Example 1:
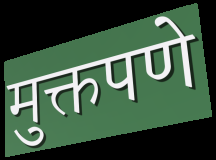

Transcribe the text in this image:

मुक्तपणे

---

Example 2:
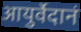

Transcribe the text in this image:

आयुर्वेदानं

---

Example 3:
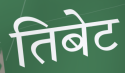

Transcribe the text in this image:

तिबेट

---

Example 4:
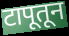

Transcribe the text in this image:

टापूतून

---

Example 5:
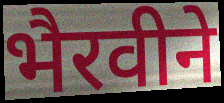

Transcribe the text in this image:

भैरवीने